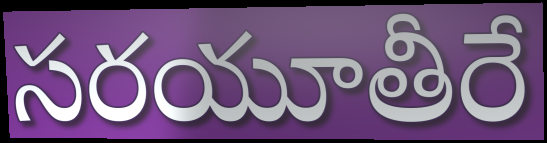
సరయూతీరే